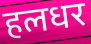
हलधर